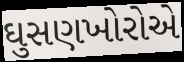
ઘુસણખોરોએ